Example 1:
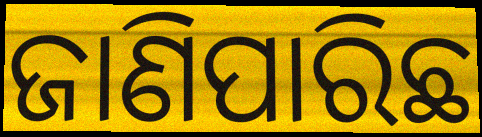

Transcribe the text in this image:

ଜାଣିପାରିଛ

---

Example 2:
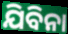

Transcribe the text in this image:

ଯିବିନା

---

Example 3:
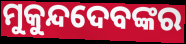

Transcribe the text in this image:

ମୁକୁନ୍ଦଦେବଙ୍କର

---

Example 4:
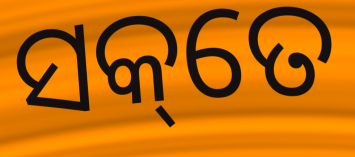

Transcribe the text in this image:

ସକ୍‌ତେ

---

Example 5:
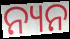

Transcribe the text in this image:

ନ୍ୟନ